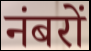
नंबरों